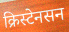
क्रिस्टेनसन